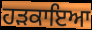
ਹੜਕਾਇਆ